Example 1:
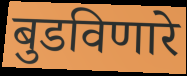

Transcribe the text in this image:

बुडविणारे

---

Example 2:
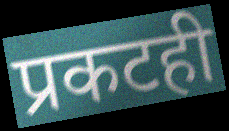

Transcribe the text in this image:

प्रकटही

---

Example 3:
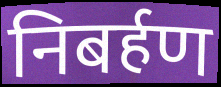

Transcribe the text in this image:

निबर्हण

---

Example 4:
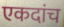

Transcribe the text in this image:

एकदांच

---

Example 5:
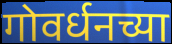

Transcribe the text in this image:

गोवर्धनच्या